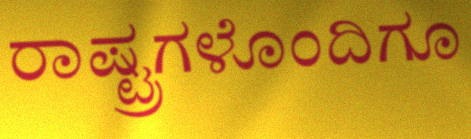
ರಾಷ್ಟ್ರಗಳೊಂದಿಗೂ